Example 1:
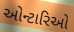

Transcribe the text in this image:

ઓન્ટારિઓ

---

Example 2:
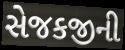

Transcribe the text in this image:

સેજકજીની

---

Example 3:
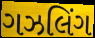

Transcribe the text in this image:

ગઝલિંગ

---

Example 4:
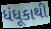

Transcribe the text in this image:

ધંધૂકાથી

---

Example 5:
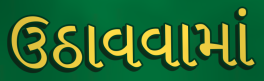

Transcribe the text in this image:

ઉઠાવવામાં